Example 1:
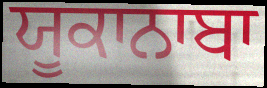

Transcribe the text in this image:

ਯੂਕਾਨਾਬਾ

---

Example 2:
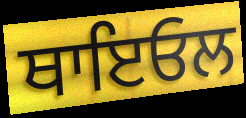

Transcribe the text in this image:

ਥਾਇਓਲ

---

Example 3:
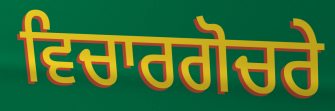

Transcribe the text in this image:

ਵਿਚਾਰਗੋਚਰੇ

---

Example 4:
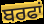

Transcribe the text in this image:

ਬਰਫਾਂ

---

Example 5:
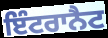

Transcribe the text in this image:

ਇੰਟਰਾਨੈਟ